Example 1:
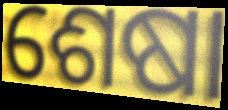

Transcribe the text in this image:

ଶେଷା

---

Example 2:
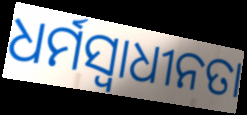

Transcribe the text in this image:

ଧର୍ମସ୍ୱାଧୀନତା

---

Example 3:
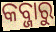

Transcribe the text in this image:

କବ୍ଜାରୁ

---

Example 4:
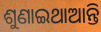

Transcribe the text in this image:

ଶୁଣାଇଥାଆନ୍ତି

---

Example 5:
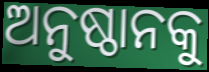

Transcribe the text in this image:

ଅନୁଷ୍ଠାନକୁ